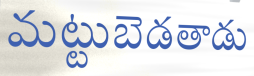
మట్టుబెడతాడు